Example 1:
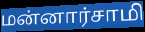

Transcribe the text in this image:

மன்னார்சாமி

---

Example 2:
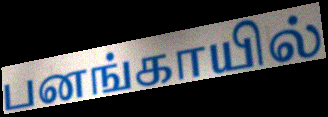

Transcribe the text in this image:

பனங்காயில்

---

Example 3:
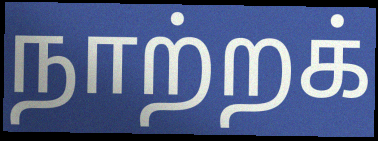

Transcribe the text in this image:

நாற்றக்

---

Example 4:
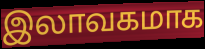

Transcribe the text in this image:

இலாவகமாக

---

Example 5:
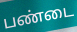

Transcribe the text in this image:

பண்டை